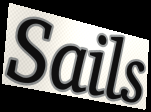
Sails